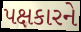
પક્ષકારને